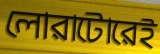
লোৱাটোৱেই